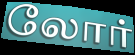
லோர்